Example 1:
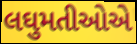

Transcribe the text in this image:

લઘુમતીઓએ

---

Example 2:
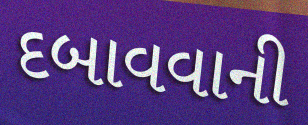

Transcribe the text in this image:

દબાવવાની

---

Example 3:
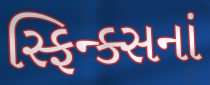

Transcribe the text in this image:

સ્ફિન્ક્સનાં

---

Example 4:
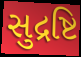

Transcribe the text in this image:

સુદ્રષ્ટિ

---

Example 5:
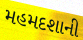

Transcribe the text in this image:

મહમદશાની